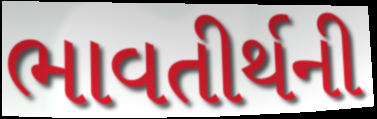
ભાવતીર્થની